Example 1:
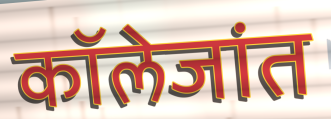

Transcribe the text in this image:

कॉलेजांत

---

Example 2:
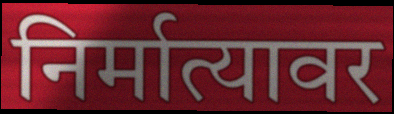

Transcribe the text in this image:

निर्मात्यावर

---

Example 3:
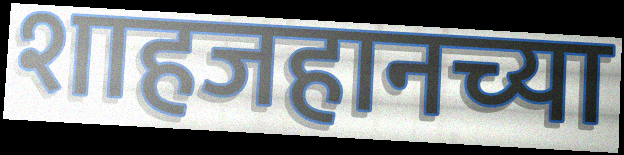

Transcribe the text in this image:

शाहजहानच्या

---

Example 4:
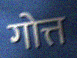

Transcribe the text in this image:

गोत्त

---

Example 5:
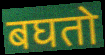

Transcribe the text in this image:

बघतो